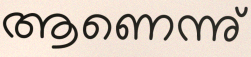
ആണെന്നു്